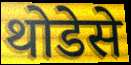
थोडेसे